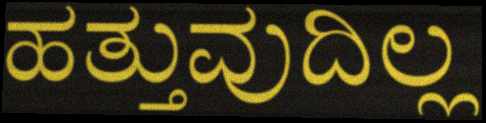
ಹತ್ತುವುದಿಲ್ಲ